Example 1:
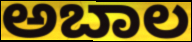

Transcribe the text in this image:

ಅಬಾಲ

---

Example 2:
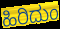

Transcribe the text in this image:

ಹಿರಿದುಂ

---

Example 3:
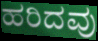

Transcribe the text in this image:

ಹರಿದವು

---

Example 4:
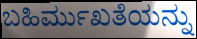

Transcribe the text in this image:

ಬಹಿರ್ಮುಖತೆಯನ್ನು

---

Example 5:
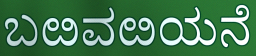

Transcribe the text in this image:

ಬೞವೞಯನೆ